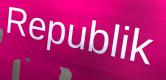
Republik